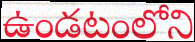
ఉండటంలోని